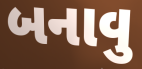
બનાવુ